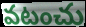
వటంచు